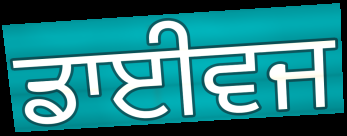
ਡਾਈਵਜ